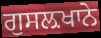
ਗੁਸਲ਼ਖਾਨੇ